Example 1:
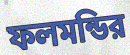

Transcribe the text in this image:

ফলমন্ডির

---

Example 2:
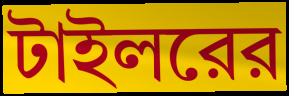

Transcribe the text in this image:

টাইলরের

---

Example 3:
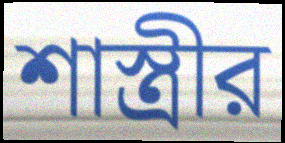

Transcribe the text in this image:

শাস্ত্রীর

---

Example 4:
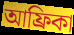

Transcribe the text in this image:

আফ্রিকা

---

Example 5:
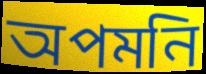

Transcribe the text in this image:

অপমনি